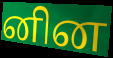
னின